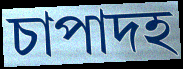
চাপাদহ